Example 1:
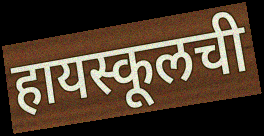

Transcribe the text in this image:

हायस्कूलची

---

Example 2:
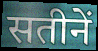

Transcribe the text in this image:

सतीनें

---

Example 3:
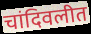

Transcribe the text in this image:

चांदिवलीत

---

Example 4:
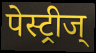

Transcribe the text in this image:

पेस्ट्रीज्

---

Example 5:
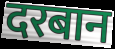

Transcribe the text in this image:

दरबान